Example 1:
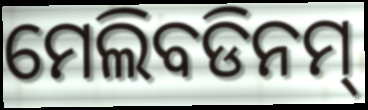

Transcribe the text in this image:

ମେଲିବଡିନମ୍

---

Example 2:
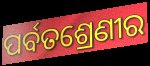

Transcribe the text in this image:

ପର୍ବତଶ୍ରେଣୀର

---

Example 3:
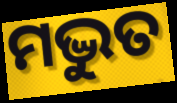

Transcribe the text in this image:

ମଦ୍ଭୁତ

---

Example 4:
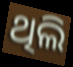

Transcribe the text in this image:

ଥିଲି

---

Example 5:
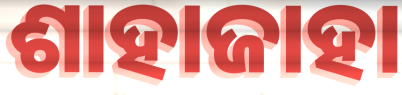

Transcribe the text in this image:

ଶାହାଜାହା